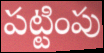
పట్టింపు